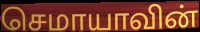
செமாயாவின்